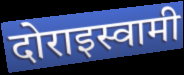
दोराइस्वामी